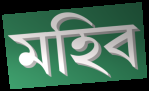
মহিব